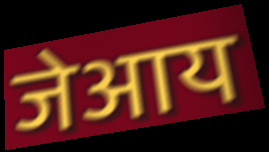
जेआय